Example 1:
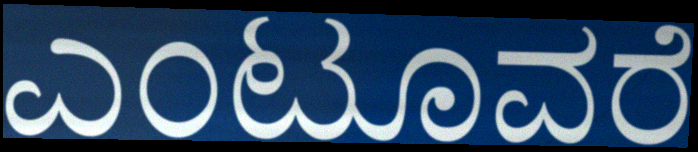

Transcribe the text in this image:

ಎಂಟೂವರೆ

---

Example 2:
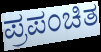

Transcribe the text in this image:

ಪ್ರಪಂಚಿತ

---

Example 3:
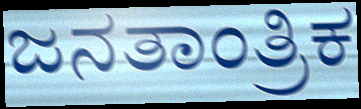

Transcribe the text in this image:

ಜನತಾಂತ್ರಿಕ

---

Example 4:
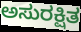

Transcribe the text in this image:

ಅಸುರಕ್ಷಿತ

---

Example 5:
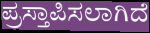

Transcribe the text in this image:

ಪ್ರಸ್ತಾಪಿಸಲಾಗಿದೆ